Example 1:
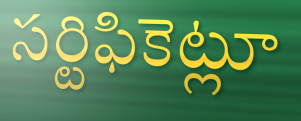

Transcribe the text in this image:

సర్టిఫికెట్లూ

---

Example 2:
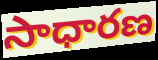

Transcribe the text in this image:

సాధారణ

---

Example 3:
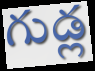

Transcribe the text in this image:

గుడ్ల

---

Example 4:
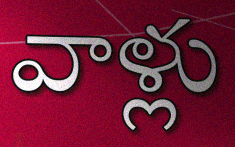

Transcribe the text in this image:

వాళ్లు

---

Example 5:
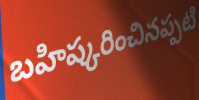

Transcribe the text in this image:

బహిష్కరించినప్పటి